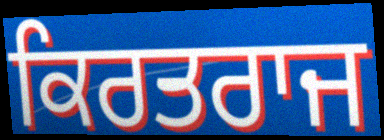
ਕਿਰਤਰਾਜ